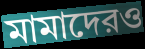
মামাদেরও